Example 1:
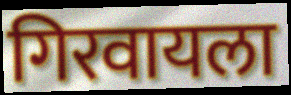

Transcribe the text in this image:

गिरवायला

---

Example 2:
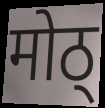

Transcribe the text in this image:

मोठ्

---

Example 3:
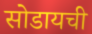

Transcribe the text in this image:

सोडायची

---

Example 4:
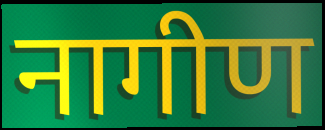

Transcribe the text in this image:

नागीण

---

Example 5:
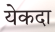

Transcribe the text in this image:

येकदा